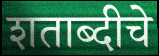
शताब्दीचे